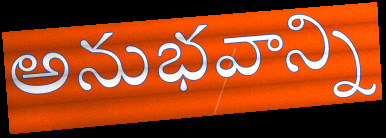
అనుభవాన్ని